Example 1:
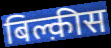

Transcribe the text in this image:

बिल्क़ीस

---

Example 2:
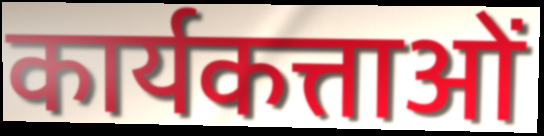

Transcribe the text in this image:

कार्यकत्ताओं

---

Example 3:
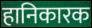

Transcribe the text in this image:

हानिकारक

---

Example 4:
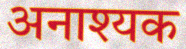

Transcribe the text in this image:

अनाश्यक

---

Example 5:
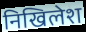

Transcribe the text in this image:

निखिलेश